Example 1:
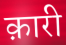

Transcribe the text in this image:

क़ारी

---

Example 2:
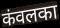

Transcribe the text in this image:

कंवलका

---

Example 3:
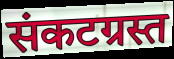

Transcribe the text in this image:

संकटग्रस्त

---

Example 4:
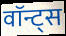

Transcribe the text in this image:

वॉन्ट्स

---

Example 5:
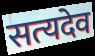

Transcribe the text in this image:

सत्‍यदेव